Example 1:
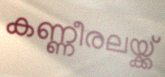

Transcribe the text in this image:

കണ്ണീരലയ്ക്ക്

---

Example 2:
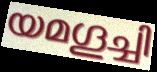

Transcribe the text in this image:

യമഗൂച്ചി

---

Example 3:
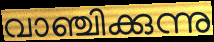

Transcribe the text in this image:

വാഞ്ചിക്കുന്നു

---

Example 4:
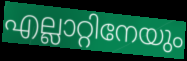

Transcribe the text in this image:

എല്ലാറ്റിനേയും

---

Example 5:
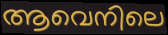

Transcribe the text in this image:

ആവെനിലെ